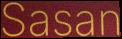
Sasan